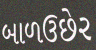
બાળઉછેર